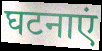
घटनाएं